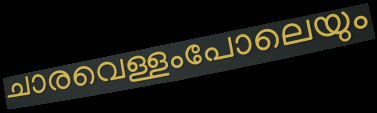
ചാരവെള്ളംപോലെയും